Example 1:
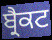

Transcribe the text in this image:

ਬ੍ਰੈਕਟ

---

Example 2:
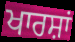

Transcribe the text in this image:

ਖਾਰਸ਼ਾਂ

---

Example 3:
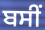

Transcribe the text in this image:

ਬਸੀਂ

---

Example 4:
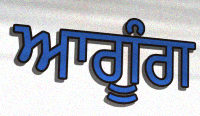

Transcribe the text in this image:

ਆਗੂੰਗ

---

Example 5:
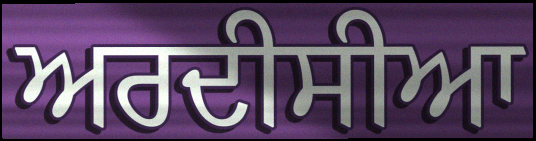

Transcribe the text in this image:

ਅਰਦੀਸੀਆ